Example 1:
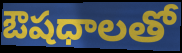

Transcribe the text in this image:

ఔషధాలతో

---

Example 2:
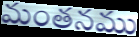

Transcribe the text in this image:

మంతనము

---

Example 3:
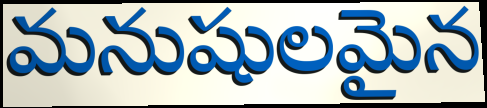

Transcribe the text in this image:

మనుషులమైన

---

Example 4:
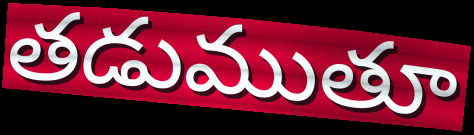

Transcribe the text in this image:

తడుముతూ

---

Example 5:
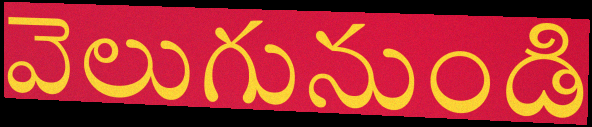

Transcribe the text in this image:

వెలుగునుండి